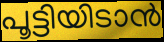
പൂട്ടിയിടാൻ